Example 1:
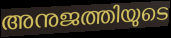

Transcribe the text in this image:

അനുജത്തിയുടെ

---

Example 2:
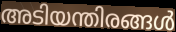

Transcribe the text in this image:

അടിയന്തിരങ്ങൾ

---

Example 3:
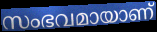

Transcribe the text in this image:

സംഭവമായാണ്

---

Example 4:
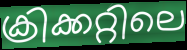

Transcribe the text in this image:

ക്രിക്കറ്റിലെ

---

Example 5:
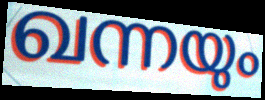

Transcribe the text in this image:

ഖന്നയും